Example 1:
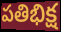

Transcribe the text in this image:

పతిభిక్ష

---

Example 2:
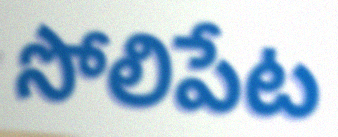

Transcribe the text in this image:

సోలిపేట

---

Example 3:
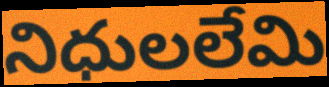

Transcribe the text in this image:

నిధులలేమి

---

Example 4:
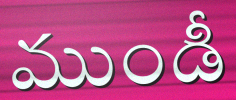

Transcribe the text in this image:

ముండీ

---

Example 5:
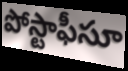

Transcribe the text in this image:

పోస్టాఫీసూ